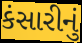
કંસારીનું